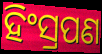
ହିଂସ୍ରପଣ